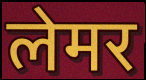
लेमर